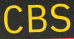
CBS